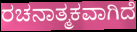
ರಚನಾತ್ಮಕವಾಗಿದೆ